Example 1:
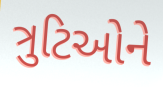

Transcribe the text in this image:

ત્રુટિઓને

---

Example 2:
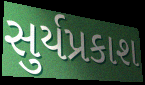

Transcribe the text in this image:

સુર્યપ્રકાશ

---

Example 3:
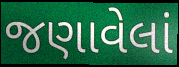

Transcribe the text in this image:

જણાવેલાં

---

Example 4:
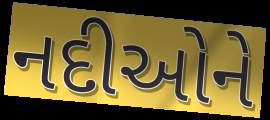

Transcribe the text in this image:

નદીઓને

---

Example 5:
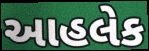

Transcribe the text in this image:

આહલેક